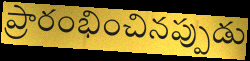
ప్రారంభించినప్పుడు